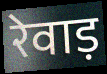
रेवाड़